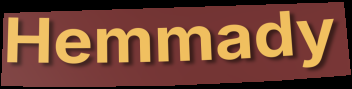
Hemmady